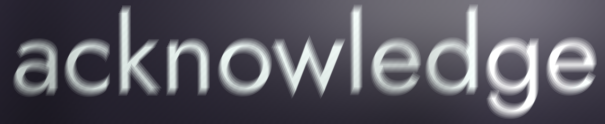
acknowledge